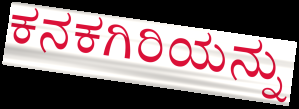
ಕನಕಗಿರಿಯನ್ನು